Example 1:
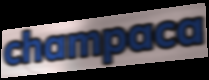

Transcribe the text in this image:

champaca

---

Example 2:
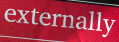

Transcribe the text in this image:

externally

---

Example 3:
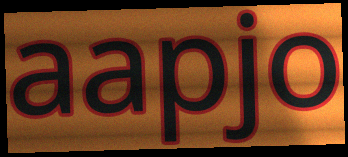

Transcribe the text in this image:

aapjo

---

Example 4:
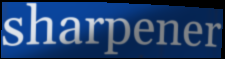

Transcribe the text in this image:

sharpener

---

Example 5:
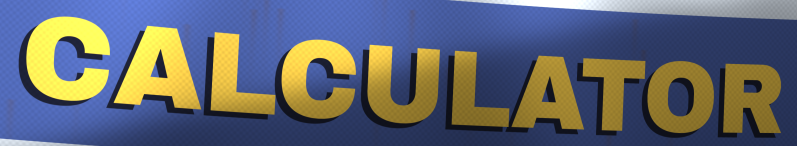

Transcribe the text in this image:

CALCULATOR